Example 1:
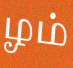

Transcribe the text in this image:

ழம்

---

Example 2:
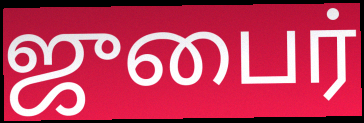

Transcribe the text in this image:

ஜுபைர்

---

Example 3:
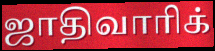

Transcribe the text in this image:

ஜாதிவாரிக்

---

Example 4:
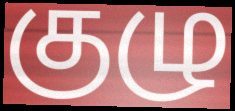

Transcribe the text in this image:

குழு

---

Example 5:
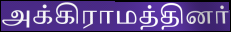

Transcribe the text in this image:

அக்கிராமத்தினர்